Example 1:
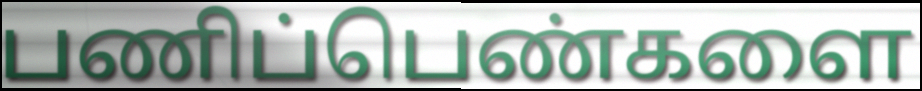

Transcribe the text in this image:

பணிப்பெண்களை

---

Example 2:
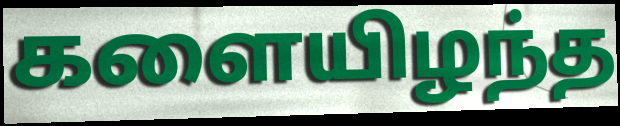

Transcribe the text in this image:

களையிழந்த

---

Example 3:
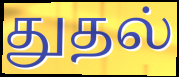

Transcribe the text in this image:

துதல்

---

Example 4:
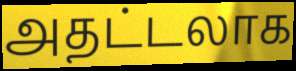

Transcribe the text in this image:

அதட்டலாக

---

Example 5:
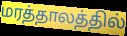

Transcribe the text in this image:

மரத்தாலத்தில்